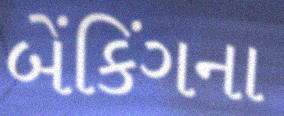
બેંકિંગના